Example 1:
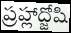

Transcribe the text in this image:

ప్రహ్లాద్జోషి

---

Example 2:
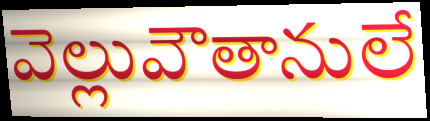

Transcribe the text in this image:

వెల్లువౌతానులే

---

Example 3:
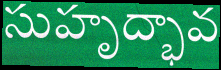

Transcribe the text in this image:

సుహృద్భావ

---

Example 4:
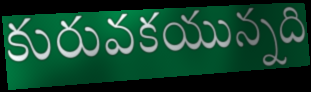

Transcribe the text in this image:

కురువకయున్నది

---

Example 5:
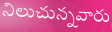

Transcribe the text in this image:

నిలుచున్నవారు